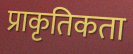
प्राकृतिकता